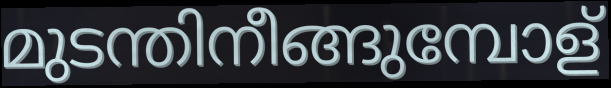
മുടന്തിനീങ്ങുമ്പോള്